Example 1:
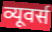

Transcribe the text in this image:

व्यूवर्स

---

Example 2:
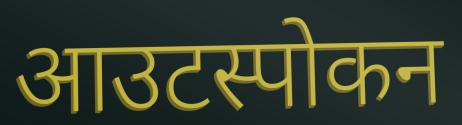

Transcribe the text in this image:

आउटस्पोकन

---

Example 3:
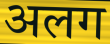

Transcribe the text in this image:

अलग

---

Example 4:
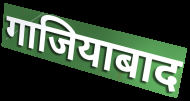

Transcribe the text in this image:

गाजियाबाद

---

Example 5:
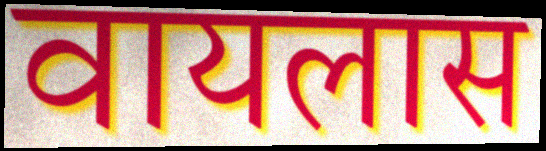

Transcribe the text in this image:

वायलास